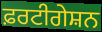
ਫ਼ਰਟੀਗੇਸ਼ਨ